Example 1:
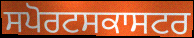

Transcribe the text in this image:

ਸਪੋਰਟਸਕਾਸਟਰ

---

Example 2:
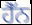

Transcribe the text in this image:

ਹੈੱਨ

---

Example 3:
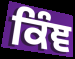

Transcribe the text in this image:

ਕਿੰਞ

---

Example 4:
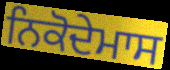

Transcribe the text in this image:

ਨਿਕੋਦੇਮਾਸ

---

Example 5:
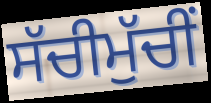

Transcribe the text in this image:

ਸੱਚੀਮੁੱਚੀਂ